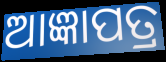
ଆଜ୍ଞାପତ୍ର